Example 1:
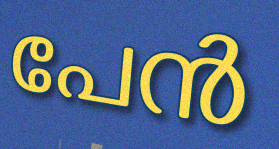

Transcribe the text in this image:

പേൻ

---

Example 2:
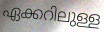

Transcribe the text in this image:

ഏക്കറിലുള്ള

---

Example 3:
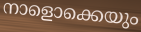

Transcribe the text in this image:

നാളൊക്കെയും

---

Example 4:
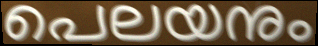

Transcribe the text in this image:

പെലയനും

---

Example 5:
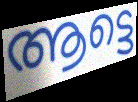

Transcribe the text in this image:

ആട്ടെ